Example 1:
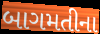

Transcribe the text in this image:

બાગમતીના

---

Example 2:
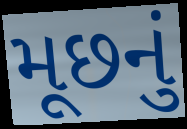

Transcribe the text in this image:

મૂછનું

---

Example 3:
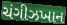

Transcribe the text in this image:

ચંગીઝખાન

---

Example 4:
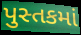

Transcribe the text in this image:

પુસ્તકમાં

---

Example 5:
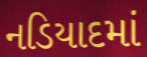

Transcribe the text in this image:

નડિયાદમાં